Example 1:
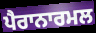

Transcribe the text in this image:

ਪੈਰਾਨਾਰਮਲ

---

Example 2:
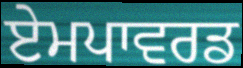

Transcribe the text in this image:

ਏਮਪਾਵਰਡ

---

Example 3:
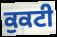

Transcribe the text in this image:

ਕੁਕਟੀ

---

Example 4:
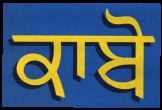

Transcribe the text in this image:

ਕਾਬੋ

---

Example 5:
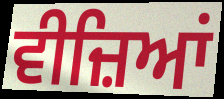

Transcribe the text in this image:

ਵੀਜ਼ਿਆਂ